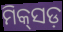
ମିକ୍‌ସଡ଼